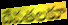
దేవతలకూ